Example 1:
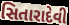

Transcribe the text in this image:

સિતારાદેવી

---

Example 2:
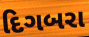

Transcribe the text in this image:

દિગબરા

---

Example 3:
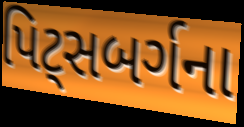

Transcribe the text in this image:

પિટ્સબર્ગના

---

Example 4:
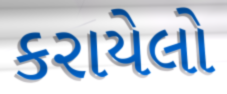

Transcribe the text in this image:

કરાયેલો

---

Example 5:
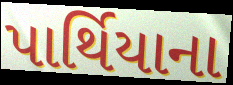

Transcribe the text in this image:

પાર્થિયાના